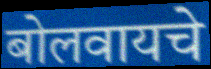
बोलवायचे